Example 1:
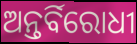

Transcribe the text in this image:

ଅନ୍ତର୍ବିରୋଧୀ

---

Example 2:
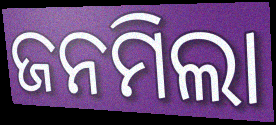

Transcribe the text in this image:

ଜନମିଲା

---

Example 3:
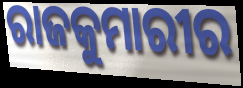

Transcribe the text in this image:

ରାଜକୁମାରୀର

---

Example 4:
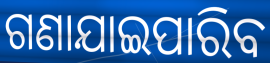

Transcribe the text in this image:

ଗଣାଯାଇପାରିବ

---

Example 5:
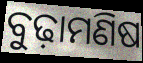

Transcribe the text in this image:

ବୁଢ଼ାମଣିଷ